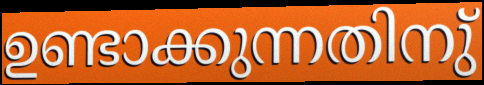
ഉണ്ടാക്കുന്നതിനു്